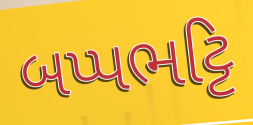
બપ્પભટ્ટિ